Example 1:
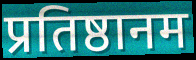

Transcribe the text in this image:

प्रतिष्ठानम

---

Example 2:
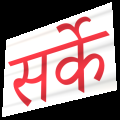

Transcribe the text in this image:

सर्के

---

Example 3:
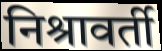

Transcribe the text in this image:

निश्रावर्ती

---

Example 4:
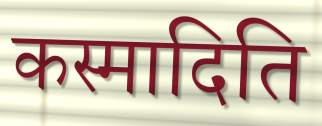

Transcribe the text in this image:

कस्मादिति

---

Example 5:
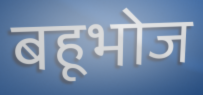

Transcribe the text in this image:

बहूभोज